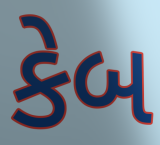
કેબ